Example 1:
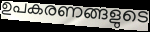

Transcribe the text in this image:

ഉപകരണങ്ങളുടെ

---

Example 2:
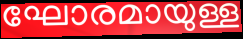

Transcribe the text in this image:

ഘോരമായുള്ള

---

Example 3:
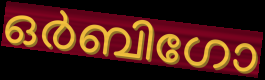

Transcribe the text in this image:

ഒർബിഗോ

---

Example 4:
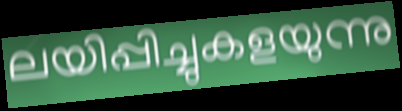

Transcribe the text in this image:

ലയിപ്പിച്ചുകളയുന്നു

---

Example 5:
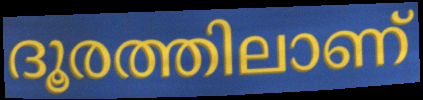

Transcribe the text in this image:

ദൂരത്തിലാണ്